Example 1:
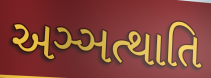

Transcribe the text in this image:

અઞ્ઞત્થાતિ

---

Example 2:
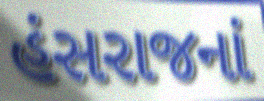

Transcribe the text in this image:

હંસરાજનાં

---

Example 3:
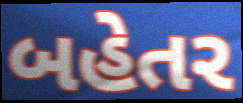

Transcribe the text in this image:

બહેતર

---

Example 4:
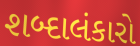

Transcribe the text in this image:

શબ્દાલંકારો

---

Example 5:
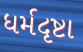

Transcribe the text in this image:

ધર્મદૃષ્ટા